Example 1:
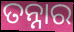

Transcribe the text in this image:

ତନ୍ନାର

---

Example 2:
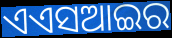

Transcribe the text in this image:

ଏଏସଆଇର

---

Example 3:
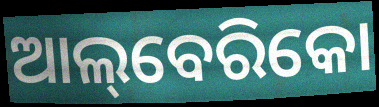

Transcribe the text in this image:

ଆଲ୍‌ବେରିକୋ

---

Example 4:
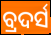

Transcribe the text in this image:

ବ୍ରଦର୍ସ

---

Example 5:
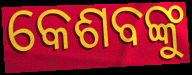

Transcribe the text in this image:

କେଶବଙ୍କୁ